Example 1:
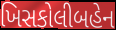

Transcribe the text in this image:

ખિસકોલીબહેન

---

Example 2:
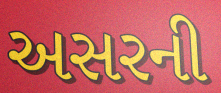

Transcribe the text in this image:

અસરની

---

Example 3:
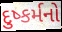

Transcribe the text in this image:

દુષ્કર્મનો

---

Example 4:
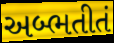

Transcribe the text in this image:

અબ્ભતીતં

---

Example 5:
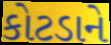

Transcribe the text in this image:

કોટડાને